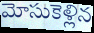
మోసుకెళ్లిన